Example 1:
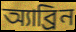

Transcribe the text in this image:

অ্যাব্রিন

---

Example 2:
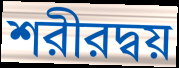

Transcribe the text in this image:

শরীরদ্বয়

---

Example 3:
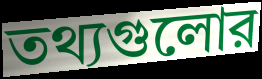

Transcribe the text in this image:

তথ্যগুলোর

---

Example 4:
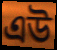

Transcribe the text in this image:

এউ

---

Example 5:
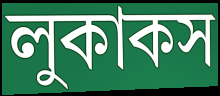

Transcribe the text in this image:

লুকাকস